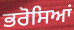
ਭਰੋਸਿਆਂ